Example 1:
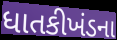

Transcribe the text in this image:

ધાતકીખંડના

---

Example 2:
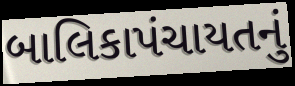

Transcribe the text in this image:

બાલિકાપંચાયતનું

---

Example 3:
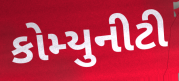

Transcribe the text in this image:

કોમ્યુનીટી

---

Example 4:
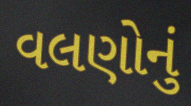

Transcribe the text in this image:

વલણોનું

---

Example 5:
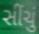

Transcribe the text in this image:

સીંચું